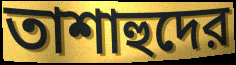
তাশাহুদের